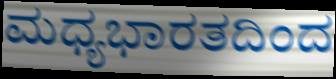
ಮಧ್ಯಭಾರತದಿಂದ